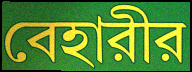
বেহারীর